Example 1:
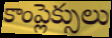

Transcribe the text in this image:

కాంప్లెక్సులు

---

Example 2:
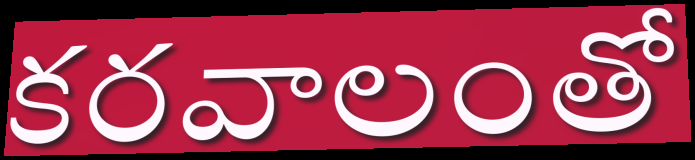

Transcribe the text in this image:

కరవాలంతో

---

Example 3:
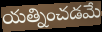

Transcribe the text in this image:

యత్నించడమే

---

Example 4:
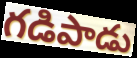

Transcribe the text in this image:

గడిపాడు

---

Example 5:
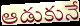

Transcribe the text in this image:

ఆడుకునే